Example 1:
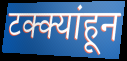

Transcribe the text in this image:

टक्क्यांहून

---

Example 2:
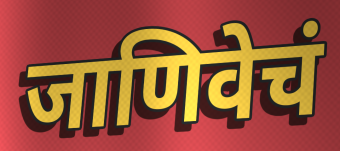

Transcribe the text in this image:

जाणिवेचं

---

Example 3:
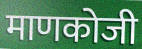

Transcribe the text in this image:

माणकोजी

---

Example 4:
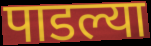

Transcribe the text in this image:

पाडल्या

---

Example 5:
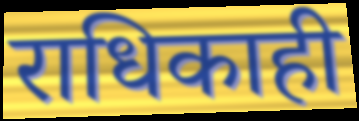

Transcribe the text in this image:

राधिकाही